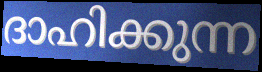
ദാഹിക്കുന്ന